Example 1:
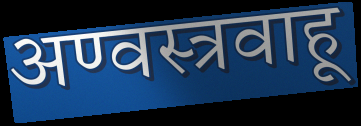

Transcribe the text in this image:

अण्वस्त्रवाहू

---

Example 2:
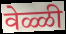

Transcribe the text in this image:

वेळ्ळी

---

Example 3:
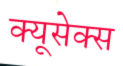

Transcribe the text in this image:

क्यूसेक्स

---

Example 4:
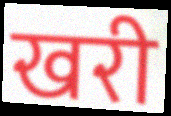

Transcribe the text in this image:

खरी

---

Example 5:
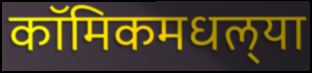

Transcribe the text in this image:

कॉमिकमधल्या